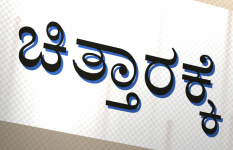
ಚಿತ್ತಾರಕ್ಕೆ